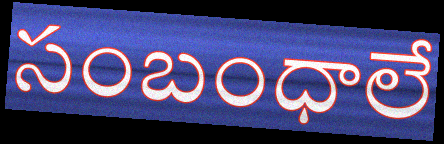
సంబంధాలే